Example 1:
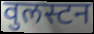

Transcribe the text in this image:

वुलस्टन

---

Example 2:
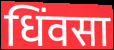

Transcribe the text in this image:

धिंवसा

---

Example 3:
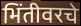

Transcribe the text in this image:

भिंतीवरचे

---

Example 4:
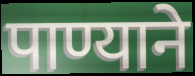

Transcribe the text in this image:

पाण्याने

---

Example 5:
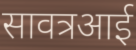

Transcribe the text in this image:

सावत्रआई